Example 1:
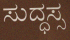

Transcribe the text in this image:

ಸುದ್ಧಸ್ಸ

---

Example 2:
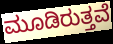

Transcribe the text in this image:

ಮೂಡಿರುತ್ತವೆ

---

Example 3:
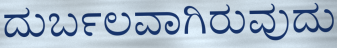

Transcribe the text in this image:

ದುರ್ಬಲವಾಗಿರುವುದು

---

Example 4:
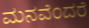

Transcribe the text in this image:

ಮನವೆಂದರೆ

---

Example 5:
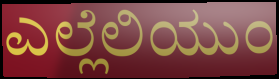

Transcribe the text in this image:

ಎಲ್ಲೆಲಿಯುಂ